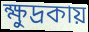
ক্ষুদ্রকায়